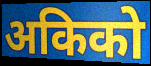
अकिको